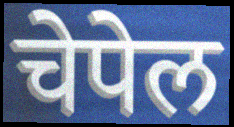
चेपेल